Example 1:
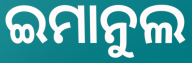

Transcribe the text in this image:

ଇମାନୁଲ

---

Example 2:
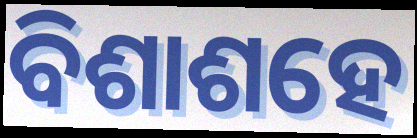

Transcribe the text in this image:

ବିଶାଶହେ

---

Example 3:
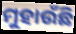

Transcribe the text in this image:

ମୁହାଉଁଛି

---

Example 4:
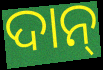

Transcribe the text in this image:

ଦାନ୍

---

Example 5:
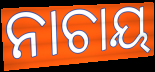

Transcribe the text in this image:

ନାଚାୟ